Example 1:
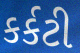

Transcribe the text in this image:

કર્કટી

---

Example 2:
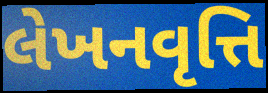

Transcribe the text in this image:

લેખનવૃત્તિ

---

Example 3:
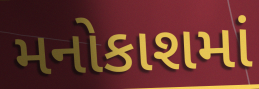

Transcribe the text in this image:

મનોકાશમાં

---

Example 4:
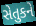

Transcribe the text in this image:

સેતુકને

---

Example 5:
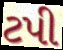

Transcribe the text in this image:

ટપી